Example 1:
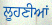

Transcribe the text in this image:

ਲੂਹਣੀਆਂ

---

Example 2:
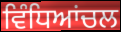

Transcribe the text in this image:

ਵਿੰਧਿਆਂਚਲ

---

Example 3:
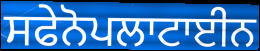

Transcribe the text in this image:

ਸਫੇਨੋਪਲਾਟਾਈਨ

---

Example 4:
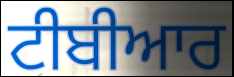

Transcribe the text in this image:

ਟੀਬੀਆਰ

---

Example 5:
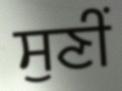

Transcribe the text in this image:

ਸੁਣੀਂ